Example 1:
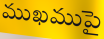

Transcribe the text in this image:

ముఖముపై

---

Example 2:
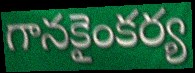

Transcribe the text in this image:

గానకైంకర్య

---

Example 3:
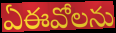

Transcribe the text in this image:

ఏఈవోలను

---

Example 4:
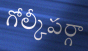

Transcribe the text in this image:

గోల్కీపర్గా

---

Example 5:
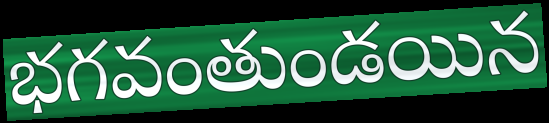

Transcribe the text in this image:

భగవంతుండయిన